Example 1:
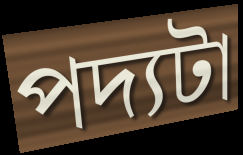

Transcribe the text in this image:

পদ্যটা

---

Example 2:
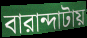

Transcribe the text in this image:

বারান্দাটায়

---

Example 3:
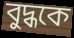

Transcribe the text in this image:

বুদ্ধকে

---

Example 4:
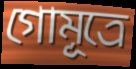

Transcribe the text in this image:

গোমূত্রে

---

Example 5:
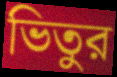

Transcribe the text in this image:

ভিতুর